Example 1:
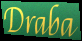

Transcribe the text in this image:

Draba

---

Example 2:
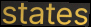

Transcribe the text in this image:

states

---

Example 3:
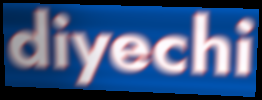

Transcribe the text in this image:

diyechi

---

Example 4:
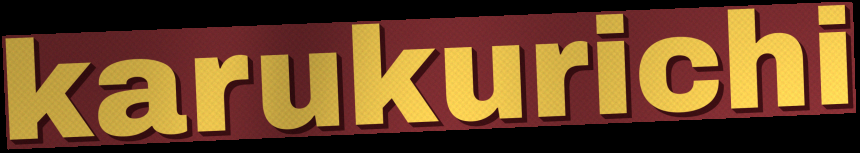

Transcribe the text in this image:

karukurichi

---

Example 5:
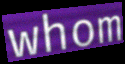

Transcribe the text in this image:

whom